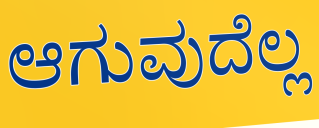
ಆಗುವುದೆಲ್ಲ